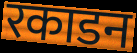
रकाडन